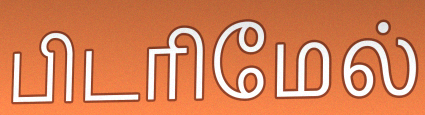
பிடரிமேல்